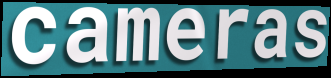
cameras